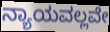
ನ್ಯಾಯವಲ್ಲವೇ